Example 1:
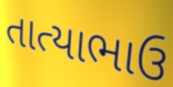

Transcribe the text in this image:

તાત્યાભાઉ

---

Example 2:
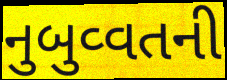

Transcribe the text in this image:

નુબુવ્વતની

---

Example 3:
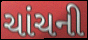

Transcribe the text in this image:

ચાંચની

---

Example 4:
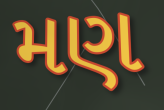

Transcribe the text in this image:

મણ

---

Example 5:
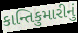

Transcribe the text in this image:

કાન્તિકુમારીનું